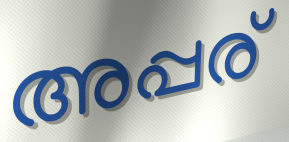
അപ്പര്